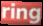
ring